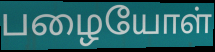
பழையோள்